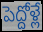
పెద్దోళ్లే